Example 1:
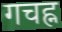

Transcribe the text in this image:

गचह्न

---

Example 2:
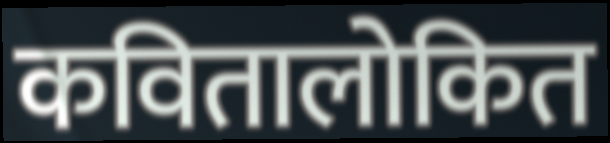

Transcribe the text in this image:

कवितालोकित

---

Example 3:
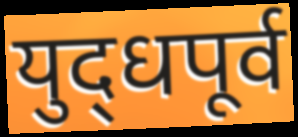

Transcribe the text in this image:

युद्धपूर्व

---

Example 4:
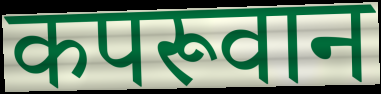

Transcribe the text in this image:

कपरूवान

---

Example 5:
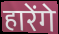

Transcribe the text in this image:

हारेंगे